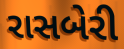
રાસબેરી